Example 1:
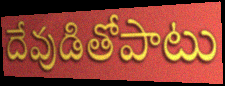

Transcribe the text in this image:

దేవుడితోపాటు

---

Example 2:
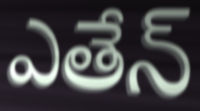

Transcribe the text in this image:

ఎతేన్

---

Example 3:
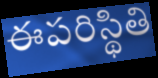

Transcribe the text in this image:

ఈపరిస్థితి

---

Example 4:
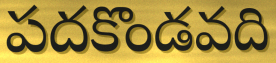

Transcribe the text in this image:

పదకొండవది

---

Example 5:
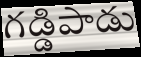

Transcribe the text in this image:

గడ్డిపాడు